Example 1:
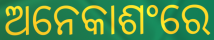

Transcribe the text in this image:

ଅନେକାଶଂରେ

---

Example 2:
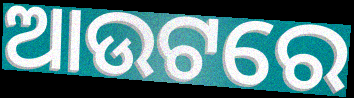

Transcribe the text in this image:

ଆଉଟରେ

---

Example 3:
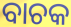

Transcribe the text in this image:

ବାଚକ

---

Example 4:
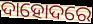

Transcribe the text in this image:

ଦାହୋଦରେ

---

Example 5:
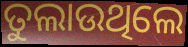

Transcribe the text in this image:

ତୁଲାଉଥିଲେ